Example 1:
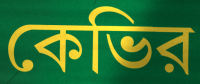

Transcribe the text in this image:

কেভির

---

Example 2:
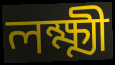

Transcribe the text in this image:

লক্ষ্মী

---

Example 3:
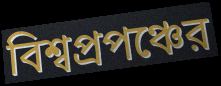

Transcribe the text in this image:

বিশ্বপ্রপঞ্চের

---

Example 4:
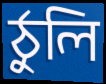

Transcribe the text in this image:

ঠুলি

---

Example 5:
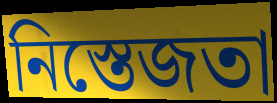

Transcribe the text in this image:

নিস্তেজতা